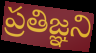
ప్రతిజ్ఞని